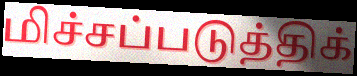
மிச்சப்படுத்திக்